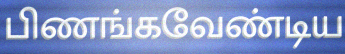
பிணங்கவேண்டிய